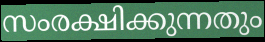
സംരക്ഷിക്കുന്നതും